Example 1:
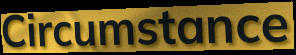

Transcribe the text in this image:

Circumstance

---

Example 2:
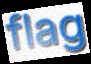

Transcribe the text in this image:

flag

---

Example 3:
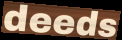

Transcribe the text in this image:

deeds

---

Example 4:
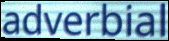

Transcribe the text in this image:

adverbial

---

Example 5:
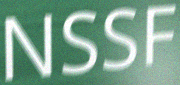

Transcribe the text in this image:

NSSF